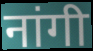
नांगी